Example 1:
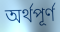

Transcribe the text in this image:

অৰ্থপূৰ্ণ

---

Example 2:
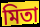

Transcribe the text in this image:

মিতা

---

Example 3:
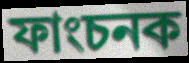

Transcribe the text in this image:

ফাংচনক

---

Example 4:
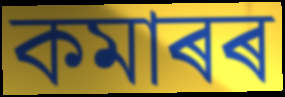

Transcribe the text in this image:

কমাৰৰ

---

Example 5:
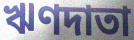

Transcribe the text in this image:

ঋণদাতা